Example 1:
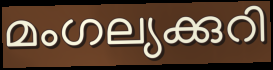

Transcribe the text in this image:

മംഗല്യക്കുറി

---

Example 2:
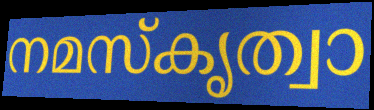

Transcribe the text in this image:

നമസ്കൃത്വാ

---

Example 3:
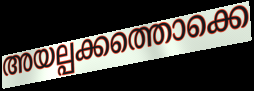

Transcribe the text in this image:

അയല്പക്കത്തൊക്കെ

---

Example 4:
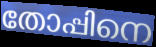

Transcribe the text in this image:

തോപ്പിനെ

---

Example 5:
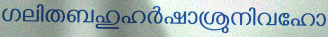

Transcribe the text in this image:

ഗലിതബഹുഹർഷാശ്രുനിവഹോ